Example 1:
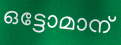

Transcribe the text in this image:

ഒട്ടോമാന്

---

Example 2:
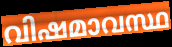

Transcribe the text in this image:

വിഷമാവസ്ഥ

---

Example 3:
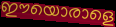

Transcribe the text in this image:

ഈയൊരാളെ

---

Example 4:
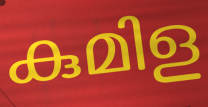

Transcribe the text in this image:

കുമിള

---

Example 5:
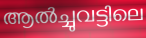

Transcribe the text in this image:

ആൽച്ചുവട്ടിലെ